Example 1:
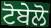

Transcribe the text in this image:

ਟੋਬੇਲੋ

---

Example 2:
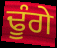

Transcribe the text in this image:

ਢੂੰਗੇ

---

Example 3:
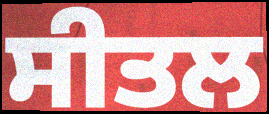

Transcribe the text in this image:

ਸੀਤਲ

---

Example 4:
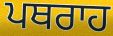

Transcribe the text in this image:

ਪਥਰਾਹ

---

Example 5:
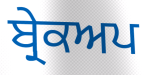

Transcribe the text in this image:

ਬ੍ਰੇਕਅਪ